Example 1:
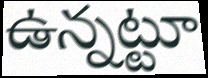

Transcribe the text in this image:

ఉన్నట్టూ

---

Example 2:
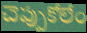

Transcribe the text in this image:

చెప్పుకోలేం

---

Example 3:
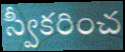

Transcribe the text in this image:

స్వీకరించ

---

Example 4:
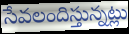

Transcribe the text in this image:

సేవలందిస్తున్నట్లు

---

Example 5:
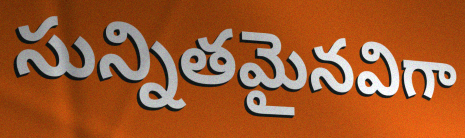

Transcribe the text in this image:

సున్నితమైనవిగా